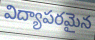
విద్యాపరమైన